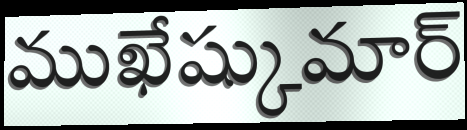
ముఖేష్కుమార్